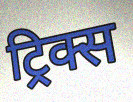
ट्रिक्स